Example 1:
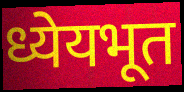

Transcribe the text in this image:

ध्येयभूत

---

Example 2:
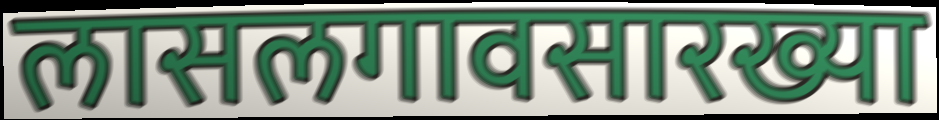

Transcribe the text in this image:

लासलगावसारख्या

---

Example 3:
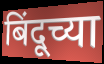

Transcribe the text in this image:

बिंदूच्या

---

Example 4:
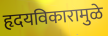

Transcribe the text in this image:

हृदयविकारामुळे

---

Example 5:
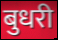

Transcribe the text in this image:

बुधरी